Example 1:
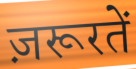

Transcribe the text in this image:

ज़रूरतें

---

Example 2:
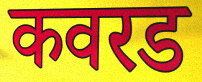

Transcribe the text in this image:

कवरड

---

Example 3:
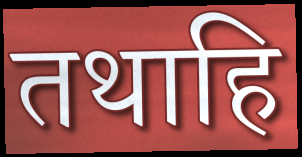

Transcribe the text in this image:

तथाहि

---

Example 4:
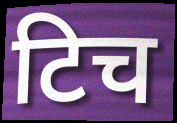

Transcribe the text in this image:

टिच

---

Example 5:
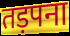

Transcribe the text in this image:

तड़पना